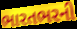
ભારતભરની